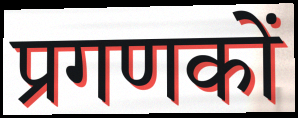
प्रगणकों